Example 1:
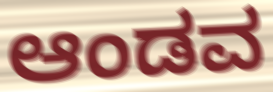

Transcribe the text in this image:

ಆಂಡವ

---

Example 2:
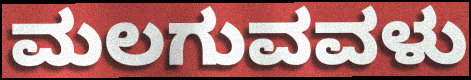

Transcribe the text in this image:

ಮಲಗುವವಳು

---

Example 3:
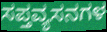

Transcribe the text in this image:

ಸಪ್ತವ್ಯಸನಗಳ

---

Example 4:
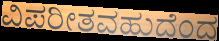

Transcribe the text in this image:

ವಿಪರೀತವಹುದೆಂದ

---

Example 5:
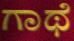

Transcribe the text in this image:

ಗಾಥೆ